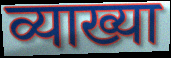
व्याख्या